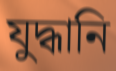
যুদ্ধানি